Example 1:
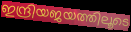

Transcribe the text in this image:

ഇന്ദ്രിയജയത്തിലൂടെ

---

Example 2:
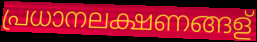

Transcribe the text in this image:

പ്രധാനലക്ഷണങ്ങള്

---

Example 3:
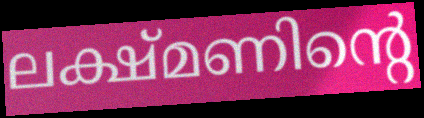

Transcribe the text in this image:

ലക്ഷ്മണിന്റെ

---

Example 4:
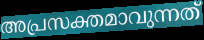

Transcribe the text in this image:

അപ്രസക്തമാവുന്നത്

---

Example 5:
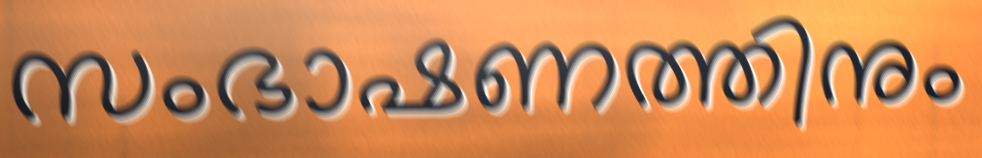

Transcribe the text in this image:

സംഭാഷണത്തിനും